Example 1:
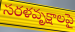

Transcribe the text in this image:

సరళవృక్షాలపై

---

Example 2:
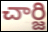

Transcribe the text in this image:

చార్జి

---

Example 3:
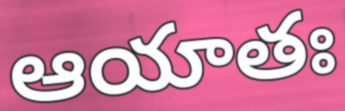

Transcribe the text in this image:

ఆయాతః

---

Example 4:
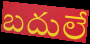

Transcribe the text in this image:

బదులే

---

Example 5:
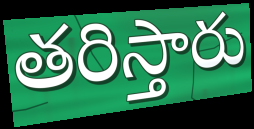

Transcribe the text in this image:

తరిస్తారు